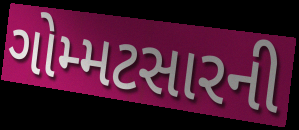
ગોમ્મટસારની